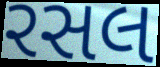
રસલ